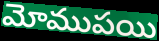
మోముపయి